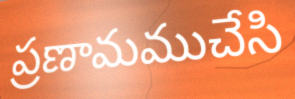
ప్రణామముచేసి